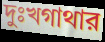
দুঃখগাথার